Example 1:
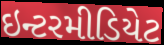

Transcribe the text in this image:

ઇન્ટરમીડિયેટ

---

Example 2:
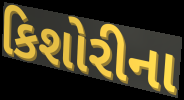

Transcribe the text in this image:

કિશોરીના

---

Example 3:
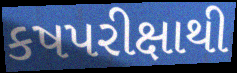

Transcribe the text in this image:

કષપરીક્ષાથી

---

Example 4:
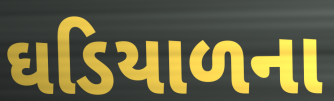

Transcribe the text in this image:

ઘડિયાળના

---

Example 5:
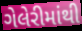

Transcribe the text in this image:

ગેલેરીમાંથી